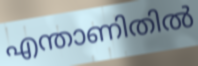
എന്താണിതിൽ